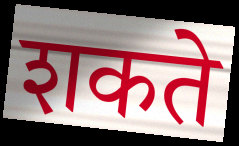
शकते